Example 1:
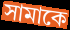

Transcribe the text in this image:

সামাকে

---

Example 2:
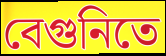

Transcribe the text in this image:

বেগুনিতে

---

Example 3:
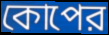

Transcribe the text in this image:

কোপের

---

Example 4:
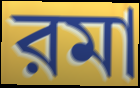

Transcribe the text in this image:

রমা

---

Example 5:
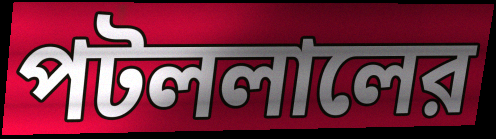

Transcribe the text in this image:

পটললালের